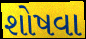
શોષવા